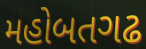
મહોબતગઢ